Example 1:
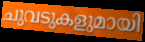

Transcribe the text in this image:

ചുവടുകളുമായി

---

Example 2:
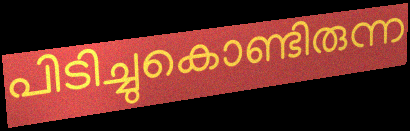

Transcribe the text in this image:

പിടിച്ചുകൊണ്ടിരുന്ന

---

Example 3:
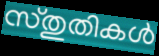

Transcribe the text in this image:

സ്തുതികൾ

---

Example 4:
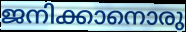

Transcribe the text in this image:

ജനിക്കാനൊരു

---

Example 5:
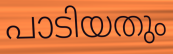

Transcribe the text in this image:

പാടിയതും